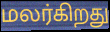
மலர்கிறது